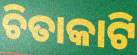
ଚିତାକାଟି